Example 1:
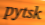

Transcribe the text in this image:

pytsk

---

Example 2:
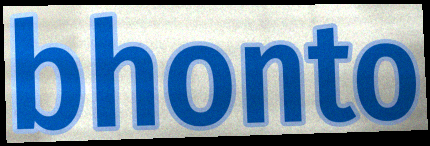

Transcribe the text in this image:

bhonto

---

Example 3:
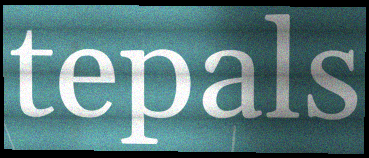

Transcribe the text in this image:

tepals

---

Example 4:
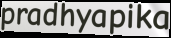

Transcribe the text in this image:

pradhyapika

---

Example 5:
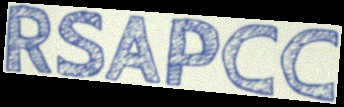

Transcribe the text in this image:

RSAPCC